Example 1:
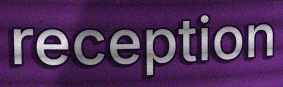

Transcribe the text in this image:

reception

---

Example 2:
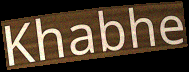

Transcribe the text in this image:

Khabhe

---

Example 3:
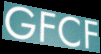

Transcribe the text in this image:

GFCF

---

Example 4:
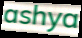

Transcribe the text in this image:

ashya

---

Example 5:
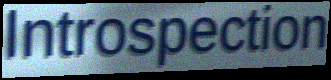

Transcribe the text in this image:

Introspection